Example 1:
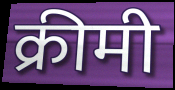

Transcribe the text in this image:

क्रीमी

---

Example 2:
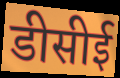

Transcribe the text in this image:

डीसीई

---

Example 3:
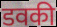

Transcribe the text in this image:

डवकी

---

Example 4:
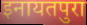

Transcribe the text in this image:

इनायतपुरा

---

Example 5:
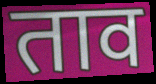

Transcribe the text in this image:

ताव